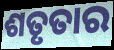
ଶତୃତାର